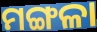
ମଙ୍ଗଳା